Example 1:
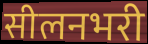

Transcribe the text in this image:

सीलनभरी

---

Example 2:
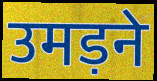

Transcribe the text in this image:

उमड़ने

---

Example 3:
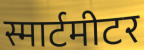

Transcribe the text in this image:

स्मार्टमीटर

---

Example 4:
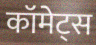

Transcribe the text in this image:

कॉमेट्स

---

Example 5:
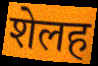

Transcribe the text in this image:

शेलह